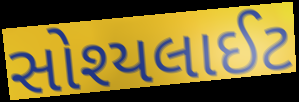
સોશ્યલાઈટ